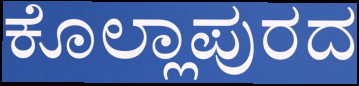
ಕೊಲ್ಲಾಪುರದ